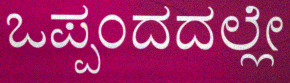
ಒಪ್ಪಂದದಲ್ಲೇ